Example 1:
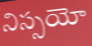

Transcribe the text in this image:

నిస్సయో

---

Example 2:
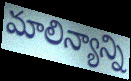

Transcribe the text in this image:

మాలిన్యాన్ని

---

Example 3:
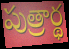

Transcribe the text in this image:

పుత్రార్థ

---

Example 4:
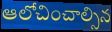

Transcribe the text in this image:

ఆలోచించాల్సిన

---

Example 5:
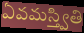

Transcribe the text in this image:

ఏవమస్త్వితి